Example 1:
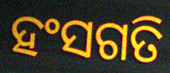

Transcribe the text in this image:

ହଂସଗତି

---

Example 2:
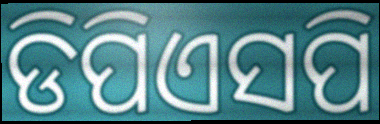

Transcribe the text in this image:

ଡିପିଏସପି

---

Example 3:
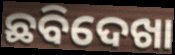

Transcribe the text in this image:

ଛବିଦେଖା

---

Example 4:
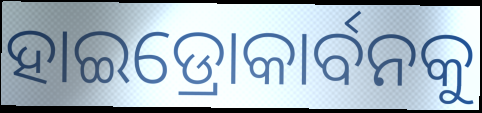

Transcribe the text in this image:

ହାଇଡ୍ରୋକାର୍ବନକୁ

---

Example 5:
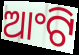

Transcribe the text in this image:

ଆଂଟି